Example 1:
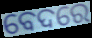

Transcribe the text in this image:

ବେଦରେ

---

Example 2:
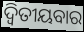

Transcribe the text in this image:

ଦ୍ୱିତୀୟବାର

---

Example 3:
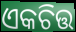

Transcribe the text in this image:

ଏକଚିତ୍ତ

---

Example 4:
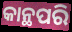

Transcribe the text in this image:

କାନ୍ଥପରି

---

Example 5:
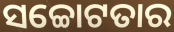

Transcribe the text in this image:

ସଚ୍ଚୋଟତାର